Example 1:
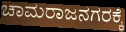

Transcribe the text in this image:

ಚಾಮರಾಜನಗರಕ್ಕೆ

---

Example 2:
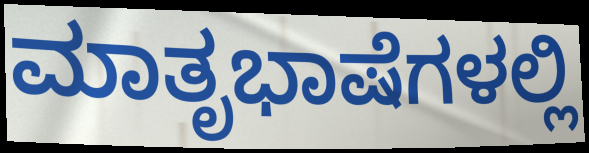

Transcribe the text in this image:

ಮಾತೃಭಾಷೆಗಳಲ್ಲಿ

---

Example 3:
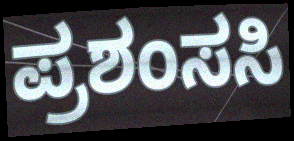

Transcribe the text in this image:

ಪ್ರಶಂಸಸಿ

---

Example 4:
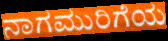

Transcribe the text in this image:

ನಾಗಮುರಿಗೆಯ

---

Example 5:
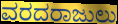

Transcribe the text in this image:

ವರದರಾಜುಲು